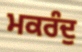
ਮਕਰੰਦੁ